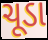
ચૂડા